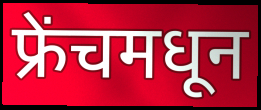
फ्रेंचमधून